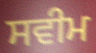
ਸਵੀਮ